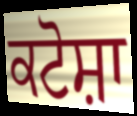
ਕਟੋਸ਼ਾ